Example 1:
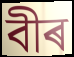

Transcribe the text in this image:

বীৰ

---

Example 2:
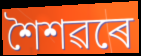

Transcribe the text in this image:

শৈশৱৰে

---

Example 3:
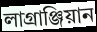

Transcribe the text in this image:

লাগ্ৰাঞ্জিয়ান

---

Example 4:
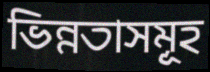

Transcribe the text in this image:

ভিন্নতাসমূহ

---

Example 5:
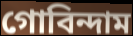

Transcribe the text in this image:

গোবিন্দাম